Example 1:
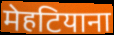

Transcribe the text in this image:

मेहटियाना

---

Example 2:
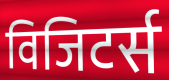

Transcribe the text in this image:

विजिटर्स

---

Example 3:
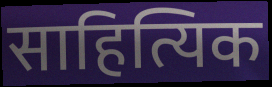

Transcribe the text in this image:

साहित्यिक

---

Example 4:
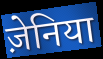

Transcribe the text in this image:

ज़ेनिया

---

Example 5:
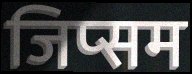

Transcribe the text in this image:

जिप्सम